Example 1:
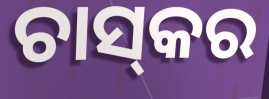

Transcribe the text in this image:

ଚାସ୍‌କର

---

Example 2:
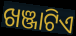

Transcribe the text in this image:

ଖଞ୍ଜାଟିଏ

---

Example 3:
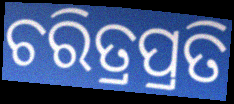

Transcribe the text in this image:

ଚରିତ୍ରପ୍ରତି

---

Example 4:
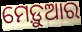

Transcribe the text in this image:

ମେଡ଼ୁଆର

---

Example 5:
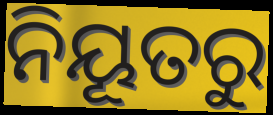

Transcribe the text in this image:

ନିୟୂତରୁ